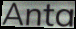
Anta